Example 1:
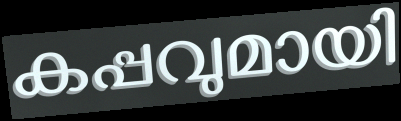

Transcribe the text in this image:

കപ്പവുമായി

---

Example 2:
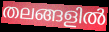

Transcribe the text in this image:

തലങ്ങളിൽ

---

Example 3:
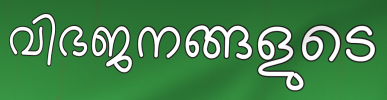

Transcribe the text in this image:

വിഭജനങ്ങളുടെ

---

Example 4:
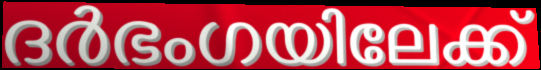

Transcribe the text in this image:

ദർഭംഗയിലേക്ക്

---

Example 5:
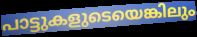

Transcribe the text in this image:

പാട്ടുകളുടെയെങ്കിലും